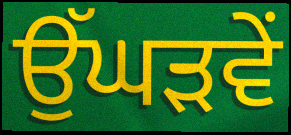
ਉੱਘੜਵੇਂ